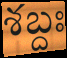
శబ్దః